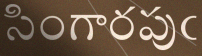
సింగారపుఁ